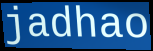
jadhao